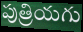
పుత్రియగు